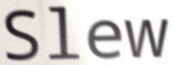
Slew